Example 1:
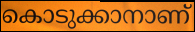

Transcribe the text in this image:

കൊടുക്കാനാണ്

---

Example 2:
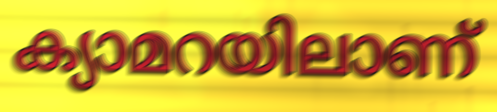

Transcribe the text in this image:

ക്യാമറയിലാണ്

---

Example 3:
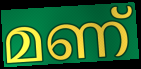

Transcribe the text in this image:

മണ്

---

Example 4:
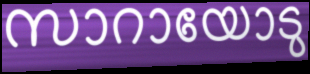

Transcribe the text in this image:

സാറായോടു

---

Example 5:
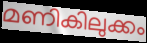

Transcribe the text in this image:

മണികിലുക്കം